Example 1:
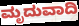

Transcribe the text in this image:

ಮೃದುವಾದಿ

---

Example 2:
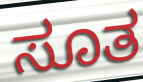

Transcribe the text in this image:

ಸೂತ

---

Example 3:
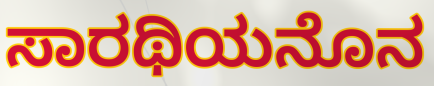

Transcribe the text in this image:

ಸಾರಥಿಯನೊನ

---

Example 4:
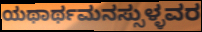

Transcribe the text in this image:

ಯಥಾರ್ಥಮನಸ್ಸುಳ್ಳವರ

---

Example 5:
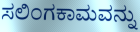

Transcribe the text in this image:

ಸಲಿಂಗಕಾಮವನ್ನು